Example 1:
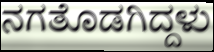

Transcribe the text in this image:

ನಗತೊಡಗಿದ್ದಳು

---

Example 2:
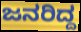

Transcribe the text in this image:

ಜನರಿದ್ದ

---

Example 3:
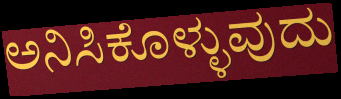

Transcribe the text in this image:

ಅನಿಸಿಕೊಳ್ಳುವುದು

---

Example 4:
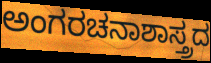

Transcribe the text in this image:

ಅಂಗರಚನಾಶಾಸ್ತ್ರದ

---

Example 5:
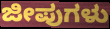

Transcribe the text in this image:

ಜೀಪುಗಳು